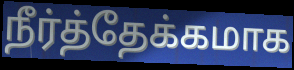
நீர்த்தேக்கமாக